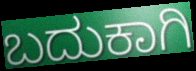
ಬದುಕಾಗಿ